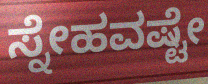
ಸ್ನೇಹವಷ್ಟೇ